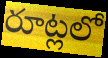
రూట్లలో